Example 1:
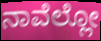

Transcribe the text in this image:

ನಾವೆಲ್ಲೋ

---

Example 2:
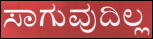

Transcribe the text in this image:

ಸಾಗುವುದಿಲ್ಲ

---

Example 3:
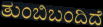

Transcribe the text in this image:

ತುಂಬಿಬಂದಿದೆ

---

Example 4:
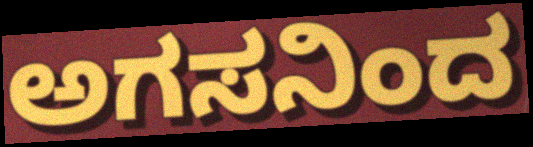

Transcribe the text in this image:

ಅಗಸನಿಂದ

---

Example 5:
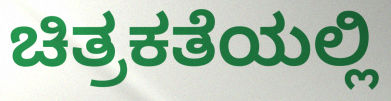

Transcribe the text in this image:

ಚಿತ್ರಕತೆಯಲ್ಲಿ